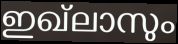
ഇഖ്‌ലാസും